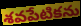
శవపేటికను